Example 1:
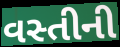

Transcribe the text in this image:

વસ્તીની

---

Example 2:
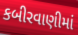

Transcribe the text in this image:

કબીરવાણીમાં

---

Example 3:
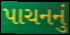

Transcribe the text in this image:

પાચનનું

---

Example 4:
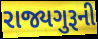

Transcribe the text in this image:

રાજ્યગુરૂની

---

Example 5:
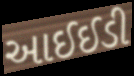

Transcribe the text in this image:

આઈઈડી